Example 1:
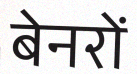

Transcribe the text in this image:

बेनरों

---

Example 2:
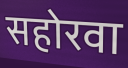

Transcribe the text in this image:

सहोरवा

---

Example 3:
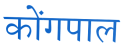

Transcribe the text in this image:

कोंगपाल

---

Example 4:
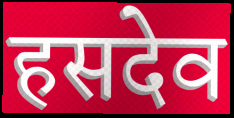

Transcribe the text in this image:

हसदेव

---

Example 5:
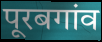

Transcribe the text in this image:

पूरबगांव